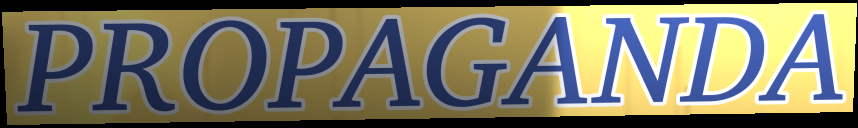
PROPAGANDA